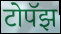
टोपॅझ